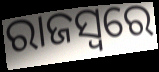
ରାଜସ୍ବରେ